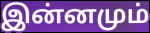
இன்னமும்